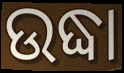
ଉଦ୍ଧା